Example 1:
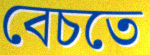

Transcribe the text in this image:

বেচতে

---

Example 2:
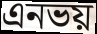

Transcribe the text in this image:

এনভয়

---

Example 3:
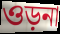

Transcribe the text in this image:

ওড়না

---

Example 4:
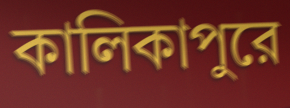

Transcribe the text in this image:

কালিকাপুরে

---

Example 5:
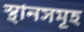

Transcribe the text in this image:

স্থানসমূহ